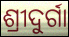
ଶ୍ରୀଦୁର୍ଗା